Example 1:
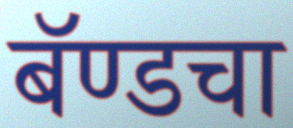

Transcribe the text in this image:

बॅण्डचा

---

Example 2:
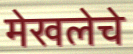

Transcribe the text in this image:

मेखलेचे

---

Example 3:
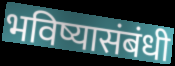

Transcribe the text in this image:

भविष्यासंबंधी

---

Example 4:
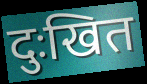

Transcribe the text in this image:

दुःखित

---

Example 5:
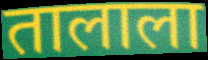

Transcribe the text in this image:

तालाला